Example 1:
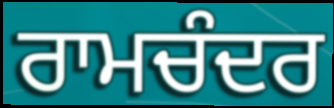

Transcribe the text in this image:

ਰਾਮਚੰਦਰ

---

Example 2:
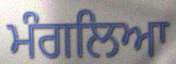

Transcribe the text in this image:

ਮੰਗਲਿਆ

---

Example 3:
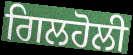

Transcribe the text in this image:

ਗਿਲਹੋਲੀ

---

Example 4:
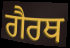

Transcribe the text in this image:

ਗੈਰਥ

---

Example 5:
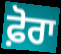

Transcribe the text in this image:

ਫ਼ੋਰਾ